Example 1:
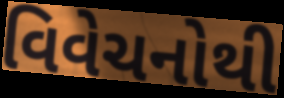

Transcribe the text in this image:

વિવેચનોથી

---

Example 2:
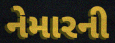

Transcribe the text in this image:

નેમારની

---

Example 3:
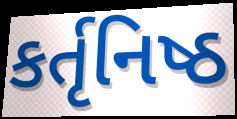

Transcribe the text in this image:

કર્તૃનિષ્ઠ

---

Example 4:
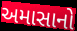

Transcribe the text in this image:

અમાસાનો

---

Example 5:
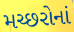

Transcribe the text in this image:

મચ્છરોનાં